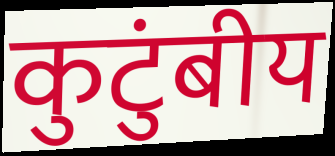
कुटुंबीय